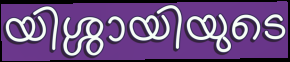
യിശ്ശായിയുടെ